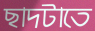
ছাদটাতে